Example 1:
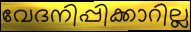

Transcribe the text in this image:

വേദനിപ്പിക്കാറില്ല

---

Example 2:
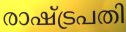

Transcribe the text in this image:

രാഷ്ട്രപതി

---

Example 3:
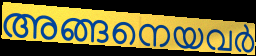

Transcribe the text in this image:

അങ്ങനെയവർ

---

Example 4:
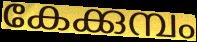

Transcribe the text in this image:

കേക്കുമ്പം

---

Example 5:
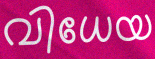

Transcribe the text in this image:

വിധേയ